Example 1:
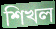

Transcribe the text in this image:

শিখল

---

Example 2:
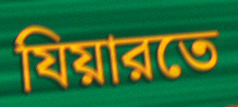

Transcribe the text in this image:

যিয়ারতে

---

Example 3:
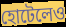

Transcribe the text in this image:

হোটেলেও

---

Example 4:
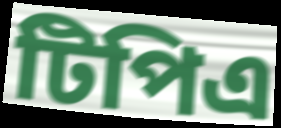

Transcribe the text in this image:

টিপিএ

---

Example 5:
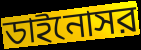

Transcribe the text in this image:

ডাইনোসর